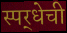
स्पर्धेची